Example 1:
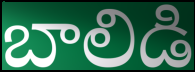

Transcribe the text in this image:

బాలిడి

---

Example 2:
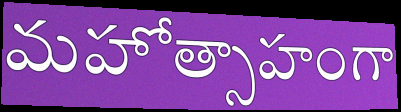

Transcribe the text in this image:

మహోత్సాహంగా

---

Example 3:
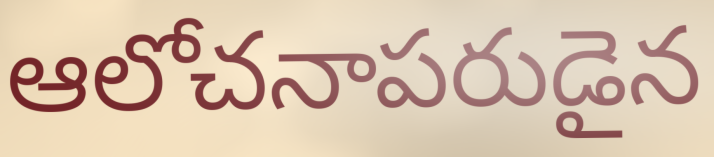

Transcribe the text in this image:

ఆలోచనాపరుడైన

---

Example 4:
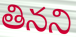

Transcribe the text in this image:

తినని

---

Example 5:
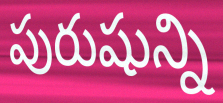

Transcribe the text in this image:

పురుషున్ని